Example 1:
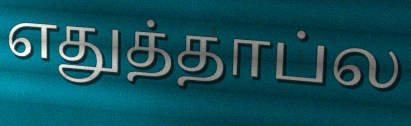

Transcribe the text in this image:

எதுத்தாப்ல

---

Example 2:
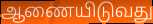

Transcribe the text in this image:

ஆணையிடுவது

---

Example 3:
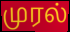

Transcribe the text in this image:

முரல்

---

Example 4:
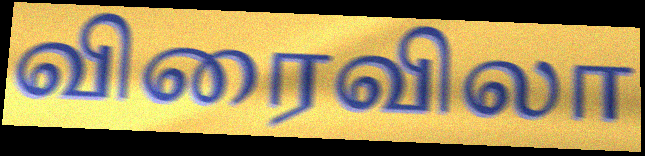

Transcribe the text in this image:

விரைவிலா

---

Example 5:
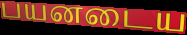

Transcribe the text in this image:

பயனடைய